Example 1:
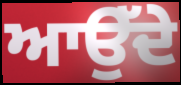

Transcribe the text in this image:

ਆਉੱਦੇ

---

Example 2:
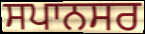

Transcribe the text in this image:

ਸਪਾਨਸਰ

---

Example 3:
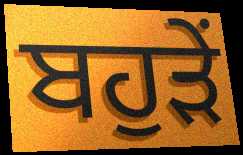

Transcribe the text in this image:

ਬਹੁੜੇਂ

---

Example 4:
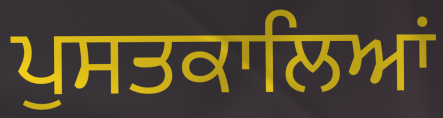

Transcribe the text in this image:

ਪੁਸਤਕਾਲਿਆਂ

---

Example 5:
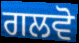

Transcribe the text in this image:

ਗਲਵੋ